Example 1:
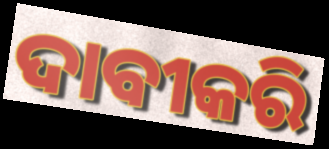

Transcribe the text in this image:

ଦାବୀକରି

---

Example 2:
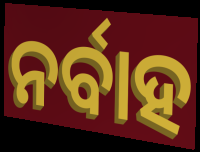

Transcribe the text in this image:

ନର୍ବାହ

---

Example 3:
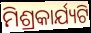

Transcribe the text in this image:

ମିଶ୍ରକାର୍ଯ୍ୟଟି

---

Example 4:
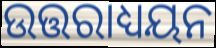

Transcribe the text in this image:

ଉତ୍ତରାଧ୍ୟୟନ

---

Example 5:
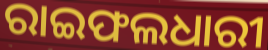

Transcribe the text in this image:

ରାଇଫଲଧାରୀ